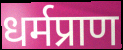
धर्मप्राण